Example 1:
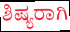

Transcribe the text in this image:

ಶಿಷ್ಯರಾಗಿ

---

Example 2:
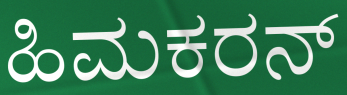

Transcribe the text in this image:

ಹಿಮಕರನ್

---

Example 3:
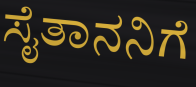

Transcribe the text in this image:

ಸೈತಾನನಿಗೆ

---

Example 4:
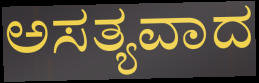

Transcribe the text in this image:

ಅಸತ್ಯವಾದ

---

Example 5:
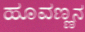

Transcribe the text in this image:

ಹೂವಣ್ಣನ